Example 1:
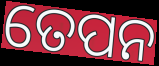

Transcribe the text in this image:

ତେପନ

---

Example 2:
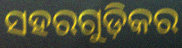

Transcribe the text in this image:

ସହରଗୁଡ଼ିକର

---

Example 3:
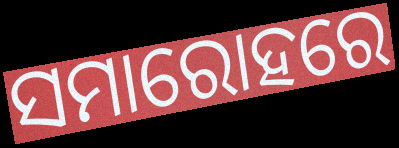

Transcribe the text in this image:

ସମାରୋହରେ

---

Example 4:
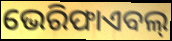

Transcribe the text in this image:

ଭେରିଫାଏବଲ୍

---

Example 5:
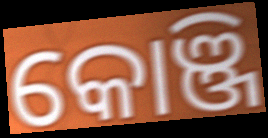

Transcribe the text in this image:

କୋଞ୍ଜି